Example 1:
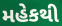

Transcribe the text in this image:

મહેકથી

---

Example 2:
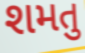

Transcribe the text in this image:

શમતુ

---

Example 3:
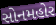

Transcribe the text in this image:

સોનમહોર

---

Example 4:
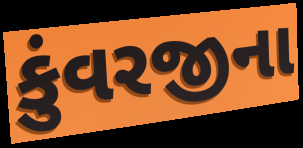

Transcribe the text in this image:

કુંવરજીના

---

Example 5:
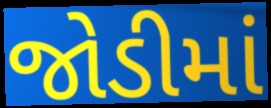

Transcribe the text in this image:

જોડીમાં